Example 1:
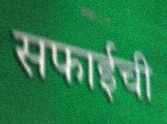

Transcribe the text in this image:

सफाईची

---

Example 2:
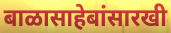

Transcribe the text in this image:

बाळासाहेबांसारखी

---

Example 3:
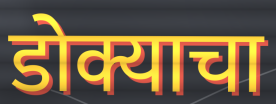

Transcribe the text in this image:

डोक्याचा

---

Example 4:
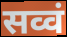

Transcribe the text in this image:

सव्वं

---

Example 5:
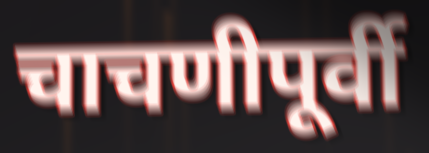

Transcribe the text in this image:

चाचणीपूर्वी